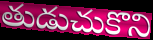
తుడుచుకొని